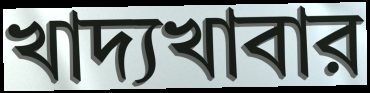
খাদ্যখাবার